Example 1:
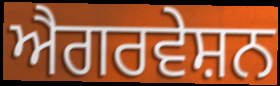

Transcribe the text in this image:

ਐਗਰਵੇਸ਼ਨ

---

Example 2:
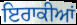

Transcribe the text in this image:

ਇਰਾਕੀਆਂ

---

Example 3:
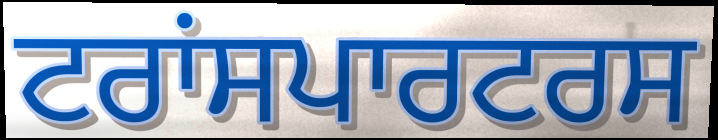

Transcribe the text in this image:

ਟਰਾਂਸਪਾਰਟਰਸ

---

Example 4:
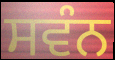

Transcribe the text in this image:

ਸਵੰਨ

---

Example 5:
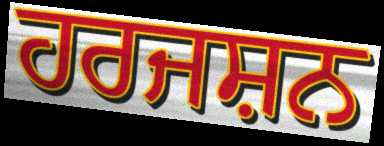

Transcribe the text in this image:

ਹਰਜਸ਼ਨ